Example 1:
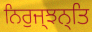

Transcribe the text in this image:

ਨਿਰੁਜ੍ਝਨ੍ਤਿ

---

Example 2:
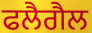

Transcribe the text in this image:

ਫਲੈਗੈਲ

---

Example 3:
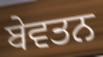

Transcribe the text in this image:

ਬੇਵਤਨ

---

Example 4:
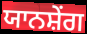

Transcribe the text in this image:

ਯਾਨਸ਼ੇਂਗ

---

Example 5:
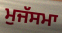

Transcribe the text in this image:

ਮੁਜੱਸਮਾ